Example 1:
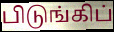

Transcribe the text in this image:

பிடுங்கிப்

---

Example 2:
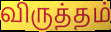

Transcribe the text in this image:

விருத்தம்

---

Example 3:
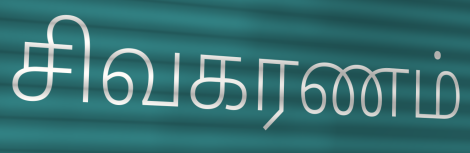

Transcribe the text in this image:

சிவகரணம்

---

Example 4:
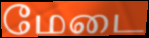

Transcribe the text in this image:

மேடை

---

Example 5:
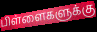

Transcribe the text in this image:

பிள்ளைகளுக்கு